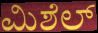
ಮಿಶೆಲ್